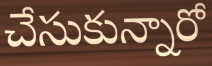
చేసుకున్నారో